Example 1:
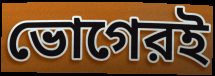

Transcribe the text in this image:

ভোগেরই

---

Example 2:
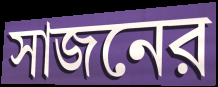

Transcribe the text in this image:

সাজনের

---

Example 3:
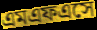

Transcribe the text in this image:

এমএফএসে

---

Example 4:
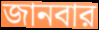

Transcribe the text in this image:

জানবার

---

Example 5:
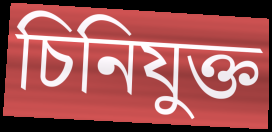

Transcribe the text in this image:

চিনিযুক্ত